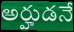
అర్హుడనే